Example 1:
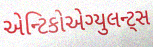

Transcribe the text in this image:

એન્ટિકોએગ્યુલન્ટ્સ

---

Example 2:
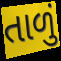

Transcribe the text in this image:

તાળું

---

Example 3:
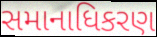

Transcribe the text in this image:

સમાનાધિકરણ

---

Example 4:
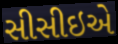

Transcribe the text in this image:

સીસીઇએ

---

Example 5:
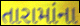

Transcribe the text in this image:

તારામાંના